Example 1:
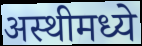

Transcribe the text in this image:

अस्थीमध्ये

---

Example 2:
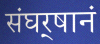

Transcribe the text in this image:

संघर्षानं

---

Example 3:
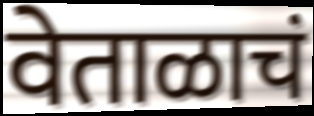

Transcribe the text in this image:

वेताळाचं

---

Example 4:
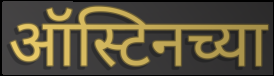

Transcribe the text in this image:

ऑस्टिनच्या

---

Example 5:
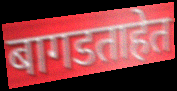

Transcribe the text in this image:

बागडताहेत